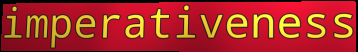
imperativeness